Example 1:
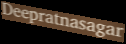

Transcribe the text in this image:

Deepratnasagar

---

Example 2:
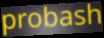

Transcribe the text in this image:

probash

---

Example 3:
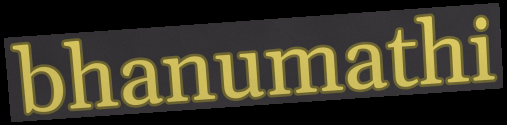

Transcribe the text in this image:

bhanumathi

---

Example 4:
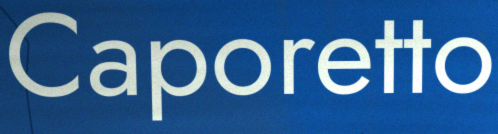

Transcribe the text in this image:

Caporetto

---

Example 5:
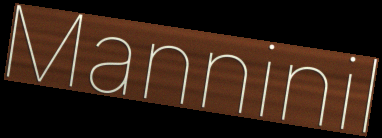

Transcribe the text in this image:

Manninil